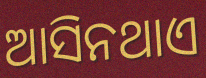
ଆସିନଥାଏ